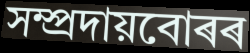
সম্প্ৰদায়বোৰৰ